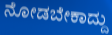
ನೋಡಬೇಕಾದ್ದು